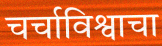
चर्चाविश्वाचा